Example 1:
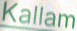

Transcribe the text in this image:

Kallam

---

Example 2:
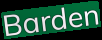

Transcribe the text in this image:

Barden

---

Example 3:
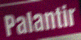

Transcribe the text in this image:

Palantir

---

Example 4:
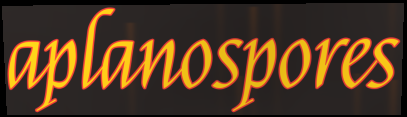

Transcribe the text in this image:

aplanospores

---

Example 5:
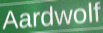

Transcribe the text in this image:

Aardwolf